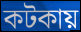
কটকায়